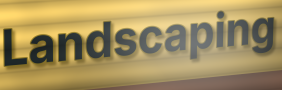
Landscaping